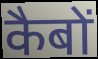
कैबों